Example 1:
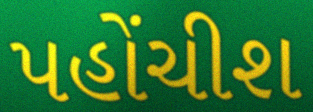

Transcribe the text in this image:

પહોંચીશ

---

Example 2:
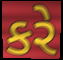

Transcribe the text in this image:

કરે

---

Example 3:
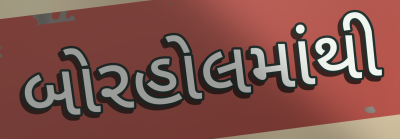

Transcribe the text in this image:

બોરહોલમાંથી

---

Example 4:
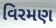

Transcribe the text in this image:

વિરમણ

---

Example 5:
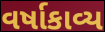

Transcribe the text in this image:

વર્ષાકાવ્ય